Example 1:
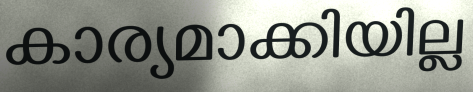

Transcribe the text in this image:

കാര്യമാക്കിയില്ല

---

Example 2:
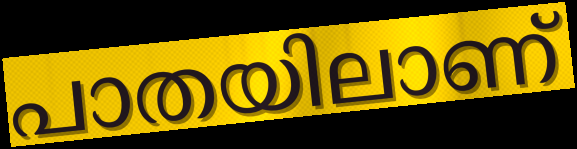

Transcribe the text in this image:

പാതയിലാണ്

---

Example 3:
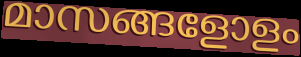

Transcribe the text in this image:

മാസങ്ങളോളം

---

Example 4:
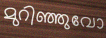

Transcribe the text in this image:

മുറിഞ്ഞുവോ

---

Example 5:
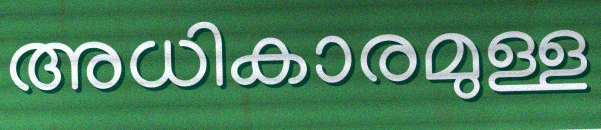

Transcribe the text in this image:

അധികാരമുള്ള